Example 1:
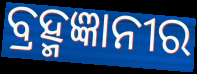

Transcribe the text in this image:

ବ୍ରହ୍ମଜ୍ଞାନୀର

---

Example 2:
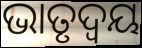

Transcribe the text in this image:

ଭାତୃଦ୍ବୟ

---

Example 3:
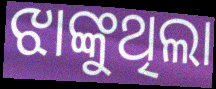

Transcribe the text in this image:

ଝାଙ୍କୁଥିଲା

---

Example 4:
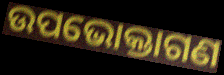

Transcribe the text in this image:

ଉପଭୋକ୍ତାଗଣ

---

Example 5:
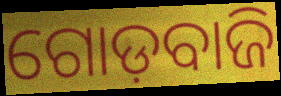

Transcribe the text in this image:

ଗୋଡ଼ବାଜି